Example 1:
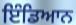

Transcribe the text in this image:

ਇੰਡਿਆਨ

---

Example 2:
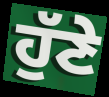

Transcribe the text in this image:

ਹੁੱਣੇ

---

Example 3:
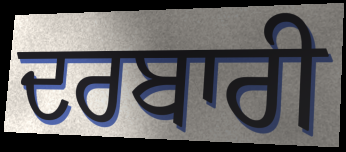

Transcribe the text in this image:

ਦਰਬਾਰੀ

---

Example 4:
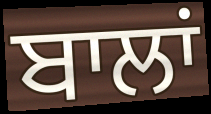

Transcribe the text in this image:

ਬਾਲਾਂ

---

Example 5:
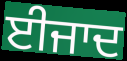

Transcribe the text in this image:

ਈਜਾਦ